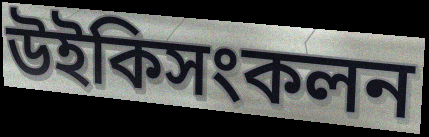
উইকিসংকলন